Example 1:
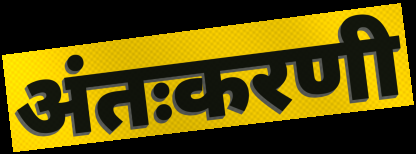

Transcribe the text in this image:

अंतःकरणी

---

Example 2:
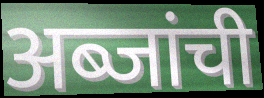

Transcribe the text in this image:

अब्जांची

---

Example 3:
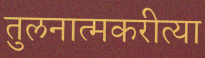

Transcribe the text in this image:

तुलनात्मकरीत्या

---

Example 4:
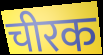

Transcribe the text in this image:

चीरक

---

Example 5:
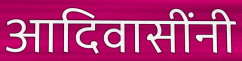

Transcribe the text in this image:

आदिवासींनी